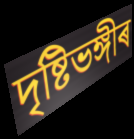
দৃষ্টিভঙ্গীৰ